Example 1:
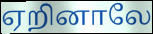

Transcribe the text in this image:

ஏறினாலே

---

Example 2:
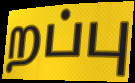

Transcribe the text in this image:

றப்பு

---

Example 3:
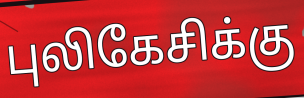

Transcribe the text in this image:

புலிகேசிக்கு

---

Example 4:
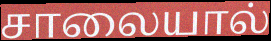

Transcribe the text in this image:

சாலையால்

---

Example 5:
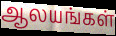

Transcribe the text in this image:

ஆலயங்கள்